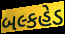
બલ્કહેડ